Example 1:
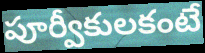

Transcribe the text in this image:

పూర్వీకులకంటే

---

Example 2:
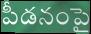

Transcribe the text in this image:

పీడనంపై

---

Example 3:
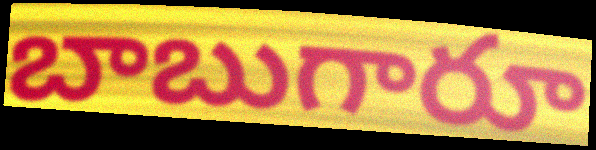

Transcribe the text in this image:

బాబుగారూ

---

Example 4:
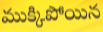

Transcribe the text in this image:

ముక్కిపోయిన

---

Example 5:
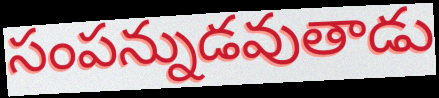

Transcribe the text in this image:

సంపన్నుడవుతాడు